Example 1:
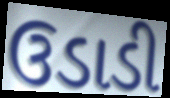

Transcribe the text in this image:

ઉડાડી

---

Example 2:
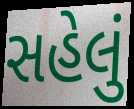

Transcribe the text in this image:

સહેલું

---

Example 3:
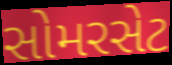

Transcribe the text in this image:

સોમરસેટ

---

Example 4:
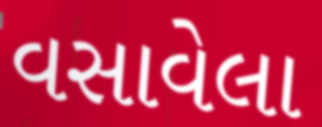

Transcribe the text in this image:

વસાવેલા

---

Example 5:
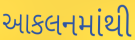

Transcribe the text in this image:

આકલનમાંથી